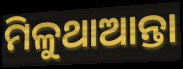
ମିଳୁଥାଆନ୍ତା